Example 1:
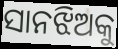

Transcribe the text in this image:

ସାନଝିଅକୁ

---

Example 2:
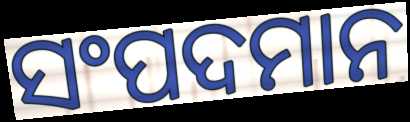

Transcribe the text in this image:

ସଂପଦମାନ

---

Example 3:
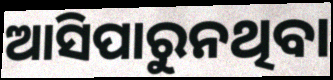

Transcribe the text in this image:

ଆସିପାରୁନଥିବା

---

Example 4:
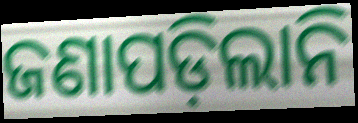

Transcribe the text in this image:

ଜଣାପଡ଼ିଲାନି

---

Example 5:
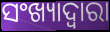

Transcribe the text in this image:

ସଂଖ୍ୟାଦ୍ଵାରା